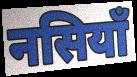
नसियाँ